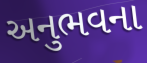
અનુભવના